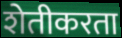
शेतीकरता